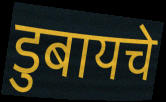
डुबायचे